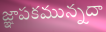
జ్ఞాపకమున్నదా